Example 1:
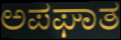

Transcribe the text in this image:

ಅಪಘಾತ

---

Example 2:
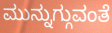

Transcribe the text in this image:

ಮುನ್ನುಗ್ಗುವಂತೆ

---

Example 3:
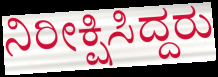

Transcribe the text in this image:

ನಿರೀಕ್ಷಿಸಿದ್ದರು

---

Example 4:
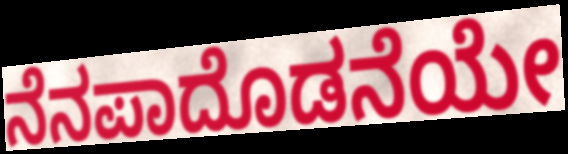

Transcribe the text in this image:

ನೆನಪಾದೊಡನೆಯೇ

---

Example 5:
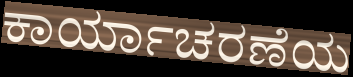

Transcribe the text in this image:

ಕಾರ್ಯಾಚರಣೆಯ